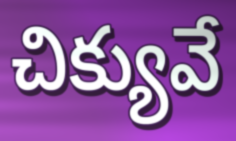
చిక్యువే